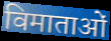
विमाताओं